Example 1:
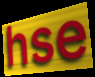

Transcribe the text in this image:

hse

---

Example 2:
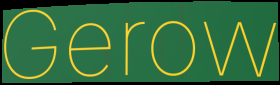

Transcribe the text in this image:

Gerow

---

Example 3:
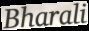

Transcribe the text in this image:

Bharali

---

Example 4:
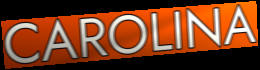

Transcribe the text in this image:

CAROLINA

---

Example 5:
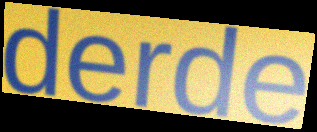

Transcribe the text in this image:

derde